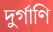
দুর্গাণি